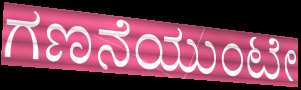
ಗಣನೆಯುಂಟೇ